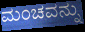
ಮಂಚವನ್ನು